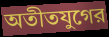
অতীতযুগের